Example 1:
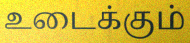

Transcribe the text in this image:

உடைக்கும்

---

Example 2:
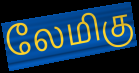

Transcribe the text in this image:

லேமிகு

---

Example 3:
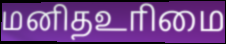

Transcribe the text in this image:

மனிதஉரிமை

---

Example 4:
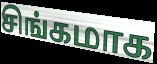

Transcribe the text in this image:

சிங்கமாக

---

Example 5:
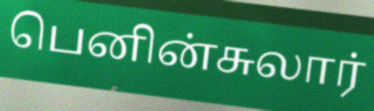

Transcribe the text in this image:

பெனின்சுலார்